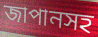
জাপানসহ